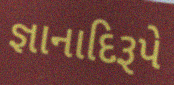
જ્ઞાનાદિરૂપે